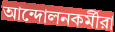
আন্দোলনকর্মীরা